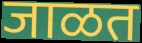
जाळत